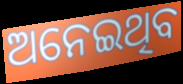
ଅନେଇଥିବ